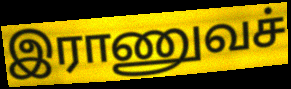
இராணுவச்